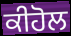
ਕੀਹੋਲ